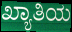
ಖ್ಯಾತಿಯ